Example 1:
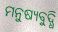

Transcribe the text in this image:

ମନୁଷ୍ୟବୁଦ୍ଧି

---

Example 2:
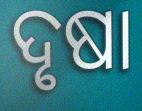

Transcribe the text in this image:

ଦୃଷା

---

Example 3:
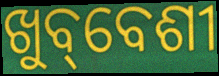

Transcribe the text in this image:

ଖୁବ୍‌ବେଶୀ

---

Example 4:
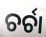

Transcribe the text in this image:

ଚର୍ଚା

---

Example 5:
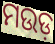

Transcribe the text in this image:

ମଉଡ଼